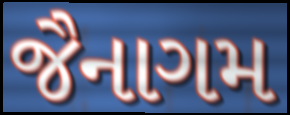
જૈનાગમ